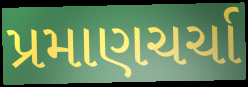
પ્રમાણચર્ચા